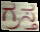
ಗ್ರಸ್ತ